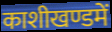
काशीखण्डमें